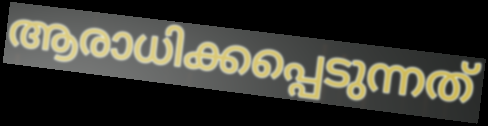
ആരാധിക്കപ്പെടുന്നത്